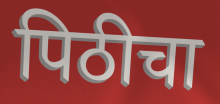
पिठीचा